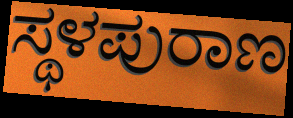
ಸ್ಥಳಪುರಾಣ